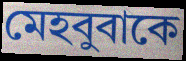
মেহবুবাকে